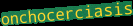
onchocerciasis